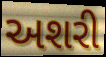
અશરી